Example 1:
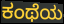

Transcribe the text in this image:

ಕಂಥೆಯ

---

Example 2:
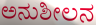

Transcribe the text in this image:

ಅನುಶೀಲನ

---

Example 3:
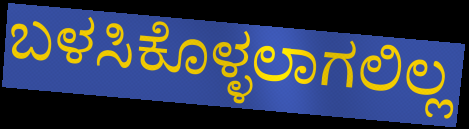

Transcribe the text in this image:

ಬಳಸಿಕೊಳ್ಳಲಾಗಲಿಲ್ಲ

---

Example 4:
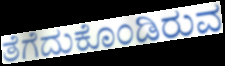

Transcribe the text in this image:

ತೆಗೆದುಕೊಂಡಿರುವ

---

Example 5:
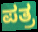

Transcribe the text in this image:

ಪತ್ರ